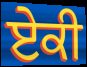
ਏਕੀ